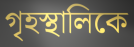
গৃহস্থালিকে